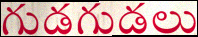
గుడగుడలు